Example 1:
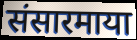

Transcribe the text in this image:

संसारमाया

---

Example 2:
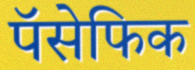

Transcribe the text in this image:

पॅसेफिक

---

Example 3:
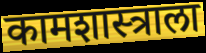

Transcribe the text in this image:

कामशास्त्राला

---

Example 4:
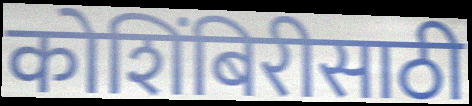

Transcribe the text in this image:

कोशिंबिरीसाठी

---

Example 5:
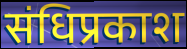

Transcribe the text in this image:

संधिप्रकाश